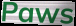
Paws